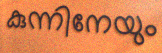
കുന്നിനേയും